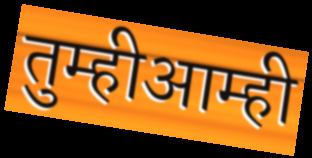
तुम्हीआम्ही